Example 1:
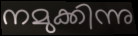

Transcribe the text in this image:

നമുക്കിന്നു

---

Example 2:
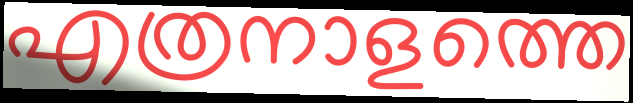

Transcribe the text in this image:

എത്രനാളത്തെ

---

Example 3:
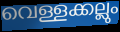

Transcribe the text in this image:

വെള്ളക്കല്ലും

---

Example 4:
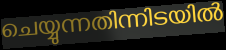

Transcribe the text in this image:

ചെയ്യുന്നതിന്നിടയിൽ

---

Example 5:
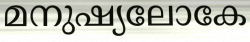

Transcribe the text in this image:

മനുഷ്യലോകേ